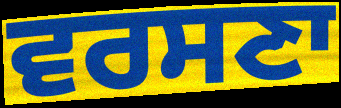
ਵਰਸਣਾ